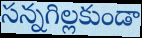
సన్నగిల్లకుండా